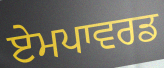
ਏਮਪਾਵਰਡ